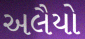
અલૈયો